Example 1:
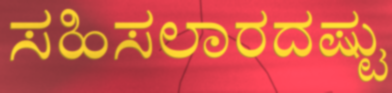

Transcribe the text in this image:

ಸಹಿಸಲಾರದಷ್ಟು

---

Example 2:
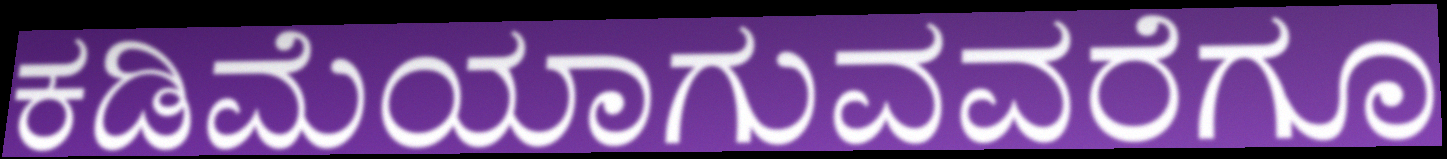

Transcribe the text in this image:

ಕಡಿಮೆಯಾಗುವವರೆಗೂ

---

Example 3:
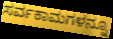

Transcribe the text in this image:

ಸರ್ವಕಾಮಗಳನ್ನೂ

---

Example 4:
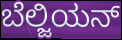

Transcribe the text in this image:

ಬೆಲ್ಜಿಯನ್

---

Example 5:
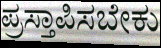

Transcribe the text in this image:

ಪ್ರಸ್ತಾಪಿಸಬೇಕು